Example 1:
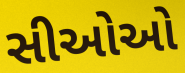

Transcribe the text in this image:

સીઓઓ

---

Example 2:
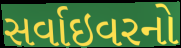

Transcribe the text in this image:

સર્વાઇવરનો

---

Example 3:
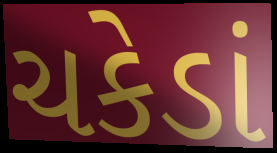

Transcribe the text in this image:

ચકેડાં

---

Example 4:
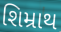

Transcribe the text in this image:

શિમ્રાથ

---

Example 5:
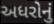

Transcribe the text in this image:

અધરોનું